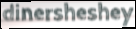
dinersheshey